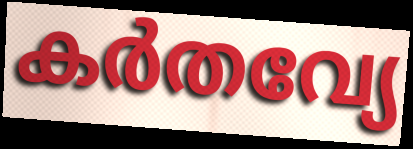
കർതവ്യേ